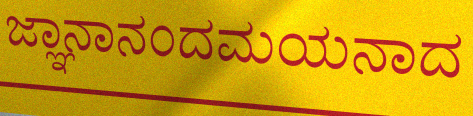
ಜ್ಞಾನಾನಂದಮಯನಾದ